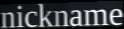
nickname